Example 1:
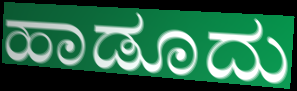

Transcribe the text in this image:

ಹಾಡೂದು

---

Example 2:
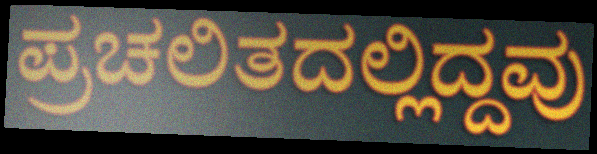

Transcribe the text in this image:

ಪ್ರಚಲಿತದಲ್ಲಿದ್ದವು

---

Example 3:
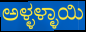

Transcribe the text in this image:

ಅಳ್ಳಳ್ಳಾಯಿ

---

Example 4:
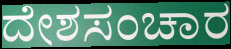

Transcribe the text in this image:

ದೇಶಸಂಚಾರ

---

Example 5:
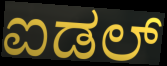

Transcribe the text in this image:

ಐಡಲ್